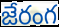
జేరంగ